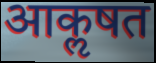
आकॢषत